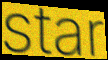
star